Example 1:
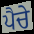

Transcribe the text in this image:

ਪੈਚੇ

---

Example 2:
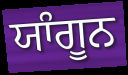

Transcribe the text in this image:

ਯਾੰਗੂਨ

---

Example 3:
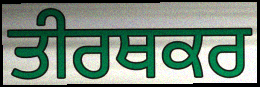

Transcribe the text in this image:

ਤੀਰਥਕਰ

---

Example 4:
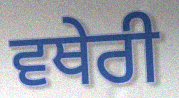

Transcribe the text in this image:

ਵਥੇਰੀ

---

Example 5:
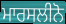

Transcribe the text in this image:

ਮਾਰਸਲੀਨੋ